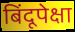
बिंदूपेक्षा